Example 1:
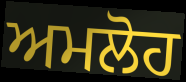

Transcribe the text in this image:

ਅਮਲੋਹ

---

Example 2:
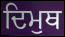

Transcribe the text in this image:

ਦਿਮੁਥ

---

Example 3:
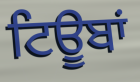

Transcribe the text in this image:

ਟਿਊਬਾਂ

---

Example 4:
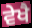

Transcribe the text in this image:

ਵੇਖੈ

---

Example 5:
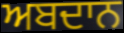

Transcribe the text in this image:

ਅਬਦਾਨ